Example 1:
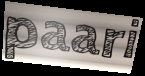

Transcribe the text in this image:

paari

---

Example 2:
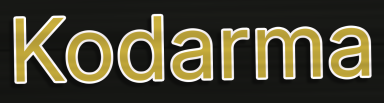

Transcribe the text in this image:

Kodarma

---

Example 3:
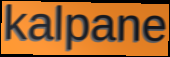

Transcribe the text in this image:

kalpane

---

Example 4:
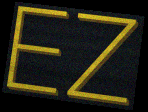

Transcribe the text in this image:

EZ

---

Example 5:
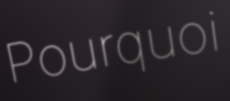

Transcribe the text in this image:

Pourquoi